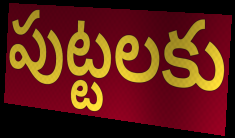
పుట్టలకు